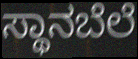
ಸ್ಥಾನಬೆಲೆ